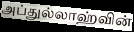
அப்துல்லாஹ்வின்